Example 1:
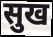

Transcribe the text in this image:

सुख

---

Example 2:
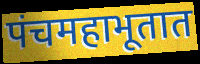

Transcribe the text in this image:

पंचमहाभूतात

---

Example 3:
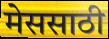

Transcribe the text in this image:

मेससाठी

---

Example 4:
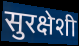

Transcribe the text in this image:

सुरक्षेशी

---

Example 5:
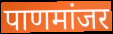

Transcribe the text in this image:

पाणमांजर